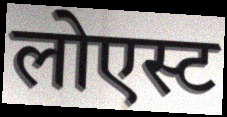
लोएस्ट